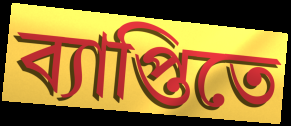
ব্যাপ্তিতে